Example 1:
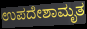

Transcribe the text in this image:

ಉಪದೇಶಾಮೃತ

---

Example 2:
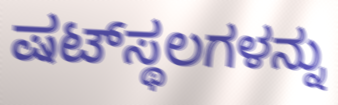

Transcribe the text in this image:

ಷಟ್‌ಸ್ಥಲಗಳನ್ನು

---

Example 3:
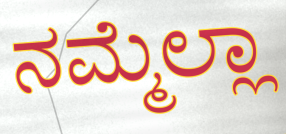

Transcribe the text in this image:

ನಮ್ಮೆಲ್ಲಾ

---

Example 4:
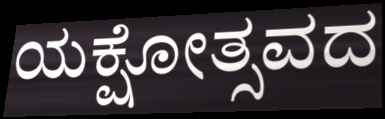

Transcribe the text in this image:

ಯಕ್ಷೋತ್ಸವದ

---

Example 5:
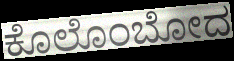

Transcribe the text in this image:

ಕೊಲೊಂಬೋದ